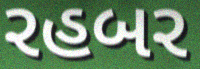
રહબર